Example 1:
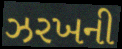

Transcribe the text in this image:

ઝરખની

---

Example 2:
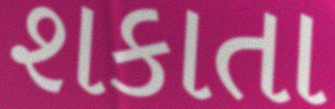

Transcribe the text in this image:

શકાતા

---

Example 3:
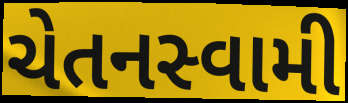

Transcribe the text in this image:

ચેતનસ્વામી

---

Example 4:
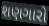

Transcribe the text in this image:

શણગારો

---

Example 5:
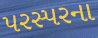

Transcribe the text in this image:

પરસ્પરના